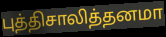
புத்திசாலித்தனமா